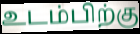
உடம்பிற்கு